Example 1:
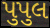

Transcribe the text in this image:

પુપુલ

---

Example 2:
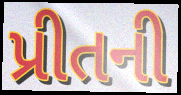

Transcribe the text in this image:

પ્રીતની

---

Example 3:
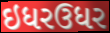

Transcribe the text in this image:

ઇધરઉધર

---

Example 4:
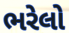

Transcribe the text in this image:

ભરેલો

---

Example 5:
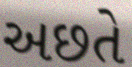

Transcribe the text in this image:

અછતે